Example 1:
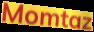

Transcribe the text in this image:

Momtaz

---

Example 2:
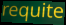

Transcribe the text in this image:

requite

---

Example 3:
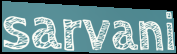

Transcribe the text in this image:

sarvani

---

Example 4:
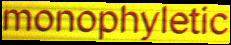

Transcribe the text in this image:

monophyletic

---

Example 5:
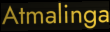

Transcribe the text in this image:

Atmalinga